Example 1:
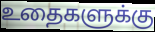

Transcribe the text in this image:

உதைகளுக்கு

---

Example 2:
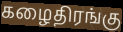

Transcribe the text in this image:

கழைதிரங்கு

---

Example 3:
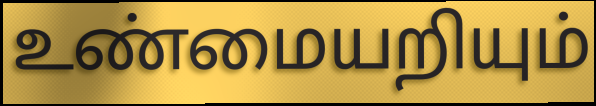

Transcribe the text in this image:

உண்மையறியும்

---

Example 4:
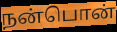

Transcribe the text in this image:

நன்பொன்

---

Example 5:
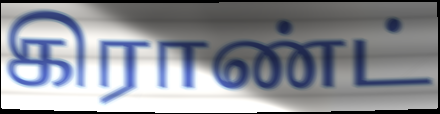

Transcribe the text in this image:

கிராண்ட்